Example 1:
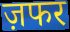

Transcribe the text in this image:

ज़फर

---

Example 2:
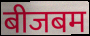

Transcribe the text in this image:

बीजबम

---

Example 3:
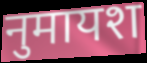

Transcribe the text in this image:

नुमायश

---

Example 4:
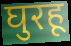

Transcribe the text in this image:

घुरहू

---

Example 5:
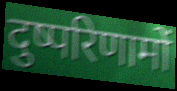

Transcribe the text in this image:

दुष्परिणामों